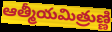
ఆత్మీయమిత్రుణ్ణి